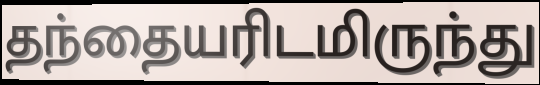
தந்தையரிடமிருந்து